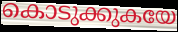
കൊടുക്കുകയേ